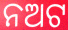
ନଅଟ